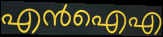
എൻഐഎ